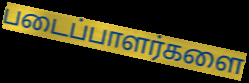
படைப்பாளர்களை